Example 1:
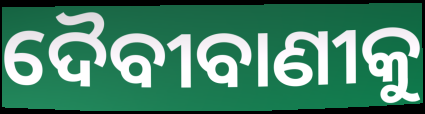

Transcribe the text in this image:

ଦୈବୀବାଣୀକୁ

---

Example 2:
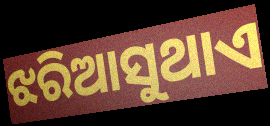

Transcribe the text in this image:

ଝରିଆସୁଥାଏ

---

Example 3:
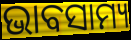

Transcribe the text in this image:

ଭାବସାମ୍ୟ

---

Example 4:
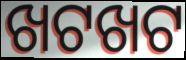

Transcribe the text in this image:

ଖଟଖଟ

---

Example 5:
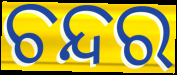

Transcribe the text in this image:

ଚନ୍ଦର